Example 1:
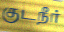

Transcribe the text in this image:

குடநீர்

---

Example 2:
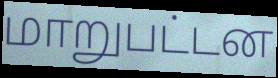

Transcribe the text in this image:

மாறுபட்டன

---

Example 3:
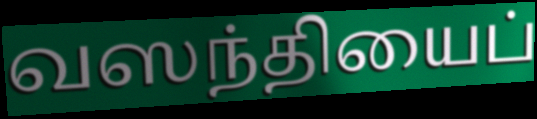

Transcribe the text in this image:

வஸந்தியைப்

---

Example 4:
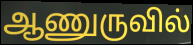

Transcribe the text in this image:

ஆணுருவில்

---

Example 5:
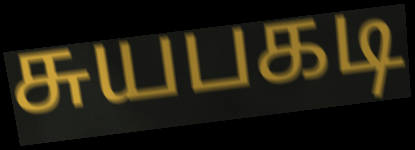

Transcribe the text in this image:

சுயபகடி